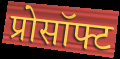
प्रोसॉफ्ट